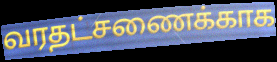
வரதட்சணைக்காக